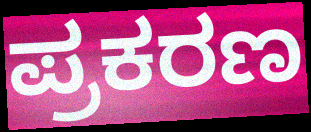
ಪ್ರಕರಣ